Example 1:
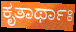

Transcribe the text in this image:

ಕೃತಾರ್ಥಾಃ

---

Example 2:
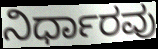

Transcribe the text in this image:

ನಿರ್ಧಾರವು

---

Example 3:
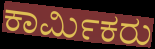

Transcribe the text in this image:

ಕಾರ್ಮಿಕರು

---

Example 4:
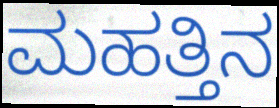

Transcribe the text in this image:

ಮಹತ್ತಿನ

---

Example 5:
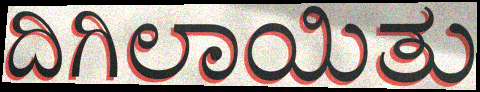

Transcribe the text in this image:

ದಿಗಿಲಾಯಿತು